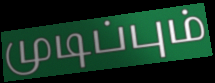
முடிப்பும்